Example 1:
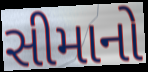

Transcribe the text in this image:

સીમાનો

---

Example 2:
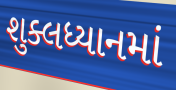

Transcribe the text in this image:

શુક્લધ્યાનમાં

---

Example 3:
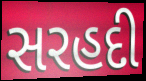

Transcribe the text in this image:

સરહદી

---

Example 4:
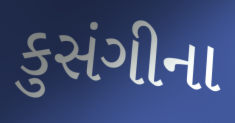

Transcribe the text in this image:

કુસંગીના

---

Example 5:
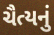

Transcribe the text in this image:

ચૈત્યનું